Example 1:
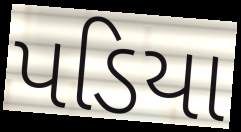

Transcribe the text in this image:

પડિયા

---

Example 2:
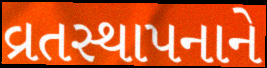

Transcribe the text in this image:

વ્રતસ્થાપનાને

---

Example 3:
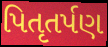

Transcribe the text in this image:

પિતૃતર્પણ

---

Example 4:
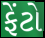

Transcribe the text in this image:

ફેંટો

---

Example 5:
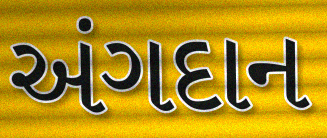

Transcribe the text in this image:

અંગદાન